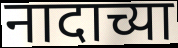
नादाच्या